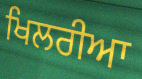
ਖਿਲਰੀਆ